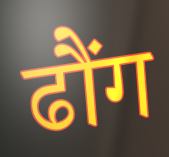
ढौंग